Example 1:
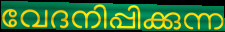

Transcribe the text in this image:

വേദനിപ്പിക്കുന്ന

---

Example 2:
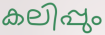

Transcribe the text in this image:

കലിപ്പും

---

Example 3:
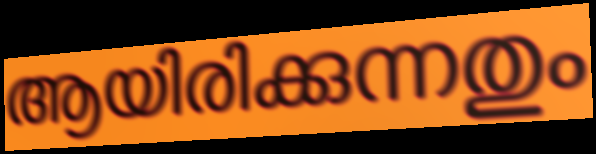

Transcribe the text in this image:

ആയിരിക്കുന്നതും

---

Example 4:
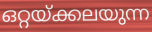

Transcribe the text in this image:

ഒറ്റയ്ക്കലയുന്ന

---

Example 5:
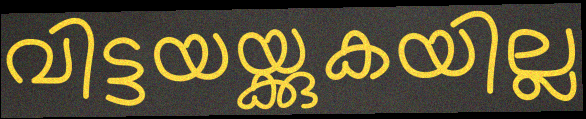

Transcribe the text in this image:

വിട്ടയയ്ക്കുകയില്ല